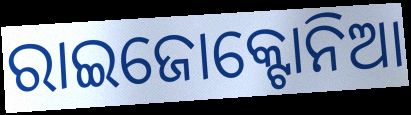
ରାଇଜୋକ୍ଟୋନିଆ